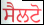
ਸੈਲਟੋ